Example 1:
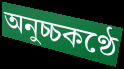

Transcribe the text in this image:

অনুচ্চকণ্ঠে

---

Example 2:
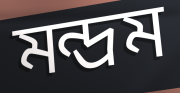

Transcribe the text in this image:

মন্দ্রম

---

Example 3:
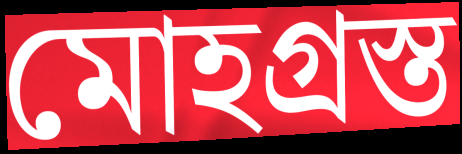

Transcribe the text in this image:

মোহগ্রস্ত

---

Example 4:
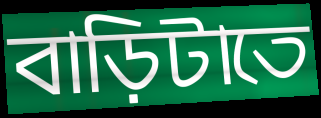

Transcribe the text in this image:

বাড়িটাতে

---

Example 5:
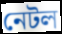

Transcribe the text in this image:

নেটল